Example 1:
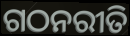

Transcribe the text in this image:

ଗଠନରୀତି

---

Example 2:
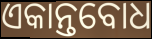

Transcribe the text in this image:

ଏକାନ୍ତବୋଧ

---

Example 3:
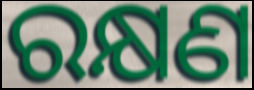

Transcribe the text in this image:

ରକ୍ଷଣ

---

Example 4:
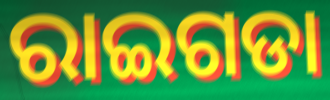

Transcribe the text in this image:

ରାଇଗଡା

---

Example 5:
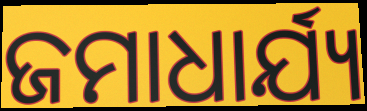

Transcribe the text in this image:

ଜମାଧାର୍ଯ୍ୟ